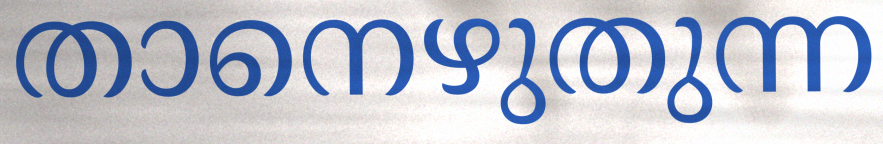
താനെഴുതുന്ന